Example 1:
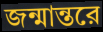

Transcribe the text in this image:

জন্মান্তরে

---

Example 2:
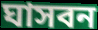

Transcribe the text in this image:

ঘাসবন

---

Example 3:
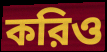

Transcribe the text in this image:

করিও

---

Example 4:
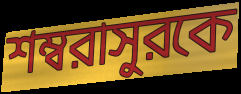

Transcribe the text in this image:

শম্বরাসুরকে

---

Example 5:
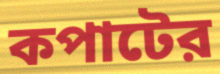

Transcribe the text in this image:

কপাটের